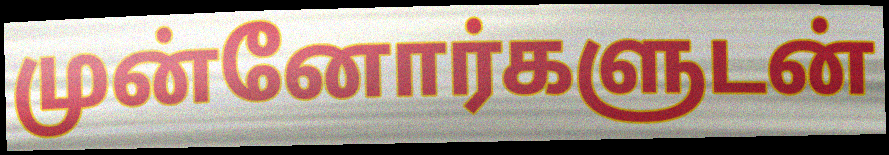
முன்னோர்களுடன்